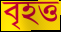
বৃহত্ত